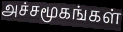
அச்சமூகங்கள்